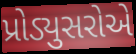
પ્રોડ્યુસરોએ